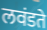
लवंडते